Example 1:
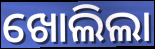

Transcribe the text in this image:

ଖୋଲିଲା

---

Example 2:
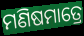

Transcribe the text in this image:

ମଣିଷମାତ୍ରେ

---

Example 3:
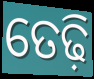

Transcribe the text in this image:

ତେଢ଼ି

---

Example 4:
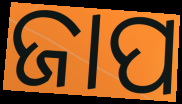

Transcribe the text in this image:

ଜାପ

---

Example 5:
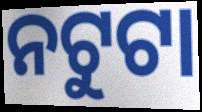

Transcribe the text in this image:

ନଟୁଟା